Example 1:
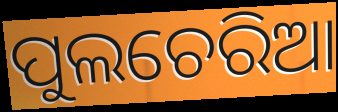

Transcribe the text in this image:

ପୁଲଚେରିଆ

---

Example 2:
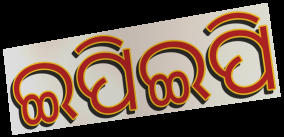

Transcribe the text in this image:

ଇପିଇପି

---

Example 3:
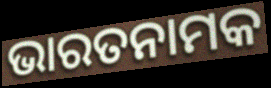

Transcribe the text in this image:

ଭାରତନାମକ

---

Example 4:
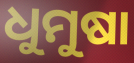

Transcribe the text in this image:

ଧୁମୁଷା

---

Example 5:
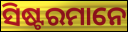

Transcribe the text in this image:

ସିଷ୍ଟରମାନେ